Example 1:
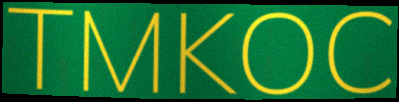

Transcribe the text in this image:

TMKOC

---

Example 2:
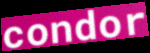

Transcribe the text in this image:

condor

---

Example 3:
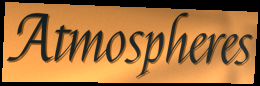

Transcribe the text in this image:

Atmospheres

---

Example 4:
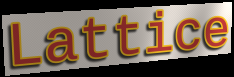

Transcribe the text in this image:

Lattice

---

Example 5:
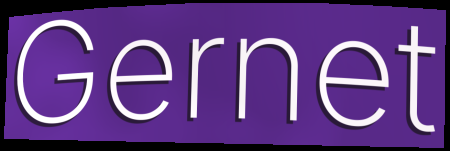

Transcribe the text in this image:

Gernet